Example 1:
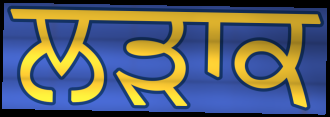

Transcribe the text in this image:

ਲੜਾਕ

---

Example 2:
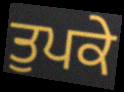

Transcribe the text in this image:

ਤੁਪਕੇ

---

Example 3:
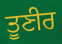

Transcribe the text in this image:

ਤੂਣੀਰ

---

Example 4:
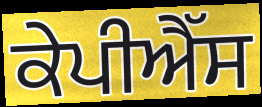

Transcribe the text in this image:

ਕੇਪੀਐੱਸ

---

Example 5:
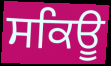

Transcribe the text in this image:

ਸਕਿਊ